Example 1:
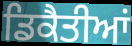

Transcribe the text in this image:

ਡਿਕੈਤੀਆਂ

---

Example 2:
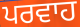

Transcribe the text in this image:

ਪਰਵਾਹ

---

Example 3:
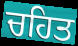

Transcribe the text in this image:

ਚਹਿਤ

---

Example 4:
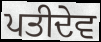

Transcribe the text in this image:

ਪਤੀਦੇਵ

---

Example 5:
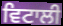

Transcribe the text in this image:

ਵਿਟਾਲੀ